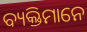
ବ୍ୟକ୍ତିମାନେ